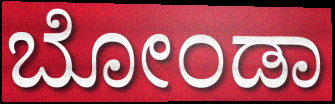
ಬೋಂಡಾ